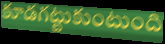
కూడగట్టుకుంటుంది